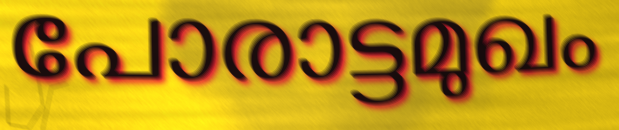
പോരാട്ടമുഖം